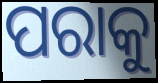
ପରାକୁ